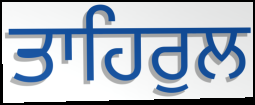
ਤਾਹਿਰੁਲ